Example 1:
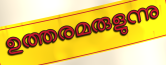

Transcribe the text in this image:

ഉത്തരമരുളുന്നു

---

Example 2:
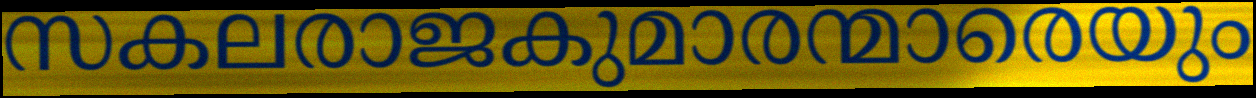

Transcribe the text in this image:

സകലരാജകുമാരന്മാരെയും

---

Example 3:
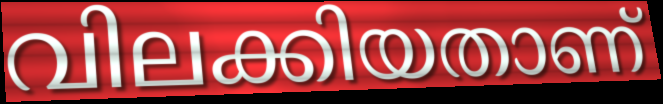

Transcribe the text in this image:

വിലക്കിയതാണ്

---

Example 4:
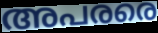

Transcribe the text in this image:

അപരരെ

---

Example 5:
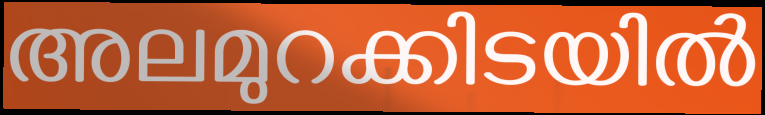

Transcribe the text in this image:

അലമുറക്കിടയിൽ